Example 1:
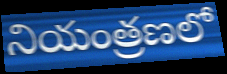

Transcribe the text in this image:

నియంత్రణలో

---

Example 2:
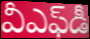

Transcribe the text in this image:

వీఎఫ్‌డీ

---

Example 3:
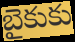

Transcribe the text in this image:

బైకుకు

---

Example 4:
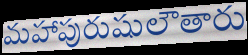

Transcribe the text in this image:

మహాపురుషులౌతారు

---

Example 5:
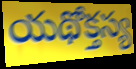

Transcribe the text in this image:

యథోక్తస్య